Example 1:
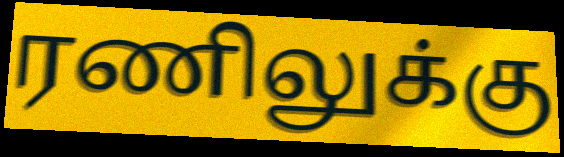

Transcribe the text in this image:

ரணிலுக்கு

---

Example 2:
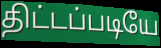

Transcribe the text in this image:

திட்டப்படியே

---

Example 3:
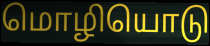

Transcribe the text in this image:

மொழியொடு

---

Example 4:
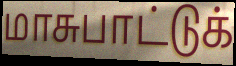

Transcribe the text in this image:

மாசுபாட்டுக்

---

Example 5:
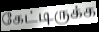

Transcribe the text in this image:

கேட்டிருக்க